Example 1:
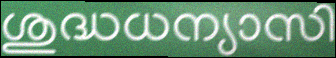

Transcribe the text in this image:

ശുദ്ധധന്യാസി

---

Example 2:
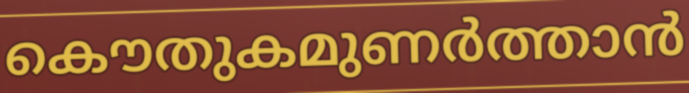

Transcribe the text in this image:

കൌതുകമുണർത്താൻ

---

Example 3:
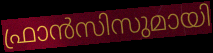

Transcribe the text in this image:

ഫ്രാൻസിസുമായി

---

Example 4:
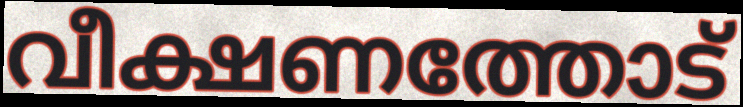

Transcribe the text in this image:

വീക്ഷണത്തോട്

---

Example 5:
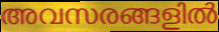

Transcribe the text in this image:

അവസരങ്ങളിൽ